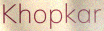
Khopkar